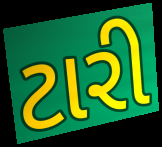
ટારી